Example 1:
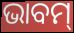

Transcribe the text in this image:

ଭାବମ୍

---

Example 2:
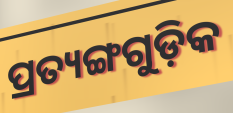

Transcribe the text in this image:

ପ୍ରତ୍ୟଙ୍ଗଗୁଡ଼ିକ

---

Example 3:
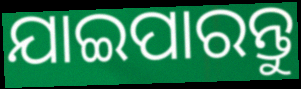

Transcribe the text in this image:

ଯାଇପାରନ୍ତୁ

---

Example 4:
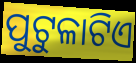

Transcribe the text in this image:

ପୁଟୁଳାଟିଏ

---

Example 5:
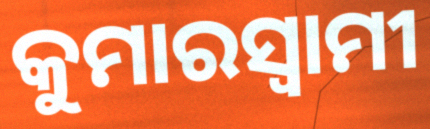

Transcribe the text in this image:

କୁମାରସ୍ୱାମୀ